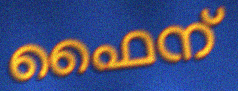
ഫൈന്